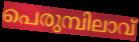
പെരുമ്പിലാവ്